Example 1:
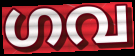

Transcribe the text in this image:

ഗവ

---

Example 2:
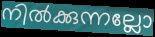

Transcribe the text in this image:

നിൽക്കുന്നല്ലോ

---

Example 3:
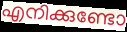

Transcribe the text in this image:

എനിക്കുണ്ടോ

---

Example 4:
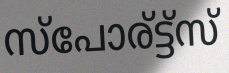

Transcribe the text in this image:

സ്പോര്ട്ട്സ്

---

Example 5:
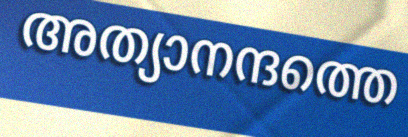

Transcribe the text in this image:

അത്യാനന്ദത്തെ